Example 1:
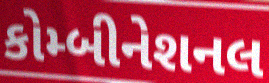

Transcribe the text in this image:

કોમ્બીનેશનલ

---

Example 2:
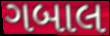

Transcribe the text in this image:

ગબાલ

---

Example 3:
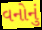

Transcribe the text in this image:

વનોનું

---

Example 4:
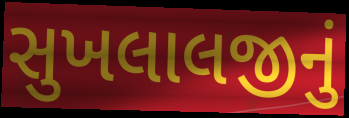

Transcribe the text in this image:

સુખલાલજીનું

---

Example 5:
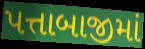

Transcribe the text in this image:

પત્તાબાજીમાં